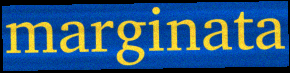
marginata